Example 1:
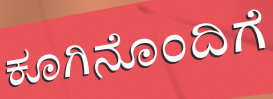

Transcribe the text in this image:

ಕೂಗಿನೊಂದಿಗೆ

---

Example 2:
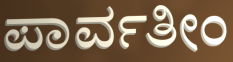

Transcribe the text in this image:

ಪಾರ್ವತೀಂ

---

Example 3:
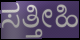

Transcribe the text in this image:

ಸತ್ತೀಹಿ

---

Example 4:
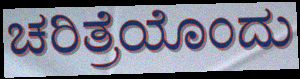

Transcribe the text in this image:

ಚರಿತ್ರೆಯೊಂದು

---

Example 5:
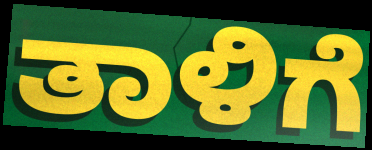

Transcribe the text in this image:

ತಾಳಿಗೆ